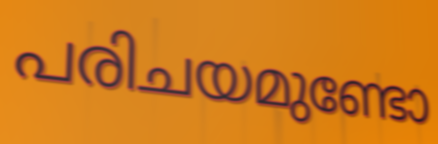
പരിചയമുണ്ടോ